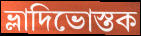
ভ্লাদিভোস্তক